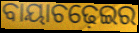
ବାୟାଚଢ଼େଇର